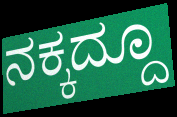
ನಕ್ಕದ್ದೂ